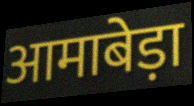
आमाबेड़ा